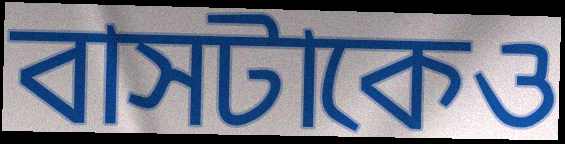
বাসটাকেও